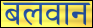
बलवान